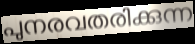
പുനരവതരിക്കുന്ന